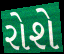
રોશે